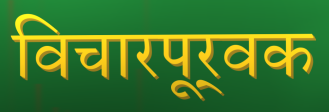
विचारपूर्वक